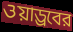
ওয়াড্রবের